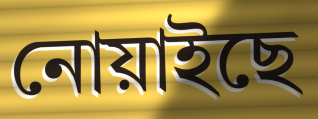
নোয়াইছে